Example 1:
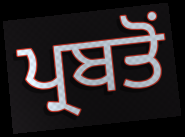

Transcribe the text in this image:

ਪ੍ਰਬਤੋਂ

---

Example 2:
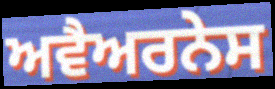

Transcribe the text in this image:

ਅਵੈਅਰਨੇਸ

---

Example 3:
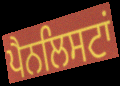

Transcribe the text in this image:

ਪੈਨਲਿਸਟਾਂ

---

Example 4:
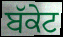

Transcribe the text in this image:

ਬੱਕੇਟ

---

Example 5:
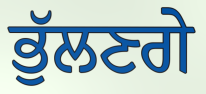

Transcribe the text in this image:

ਭੁੱਲਣਗੇ